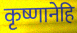
कृष्णानेहि